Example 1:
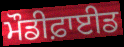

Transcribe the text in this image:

ਮੌਡੀਫ਼ਾਈਡ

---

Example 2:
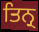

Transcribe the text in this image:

ਤਿਨ੍ਰ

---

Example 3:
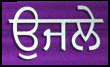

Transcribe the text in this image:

ਉਜਲੇ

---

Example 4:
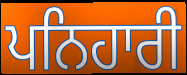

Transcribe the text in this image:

ਪਨਿਹਾਰੀ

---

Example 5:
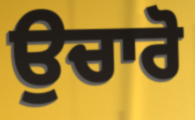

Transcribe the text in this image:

ਉਚਾਰੋ